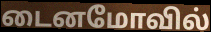
டைனமோவில்